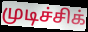
முடிச்சிக்